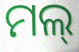
ମଲ୍